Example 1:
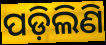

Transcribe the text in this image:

ପଡ଼ିଲିଣି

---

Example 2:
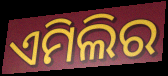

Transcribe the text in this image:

ଏମିଲିର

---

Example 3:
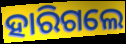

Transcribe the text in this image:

ହାରିଗଲେ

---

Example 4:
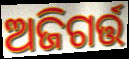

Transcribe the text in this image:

ଅଜିଗର୍ତ୍ତ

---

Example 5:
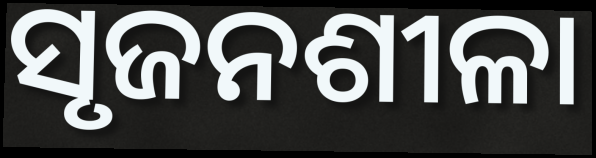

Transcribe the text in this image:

ସୃଜନଶୀଳା